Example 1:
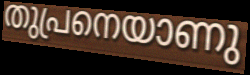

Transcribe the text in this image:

തുപ്രനെയാണു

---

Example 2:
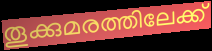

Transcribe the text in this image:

തൂക്കുമരത്തിലേക്ക്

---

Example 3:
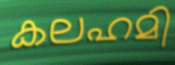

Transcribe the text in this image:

കലഹമി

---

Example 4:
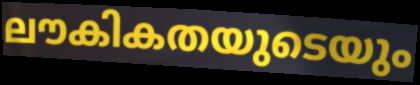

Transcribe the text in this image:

ലൗകികതയുടെയും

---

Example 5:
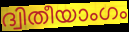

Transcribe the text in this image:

ദ്വിതീയാംഗം